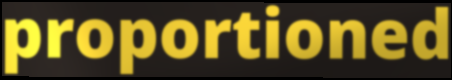
proportioned